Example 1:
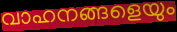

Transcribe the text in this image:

വാഹനങ്ങളെയും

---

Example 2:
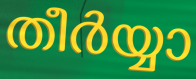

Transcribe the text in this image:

തീർയ്യാ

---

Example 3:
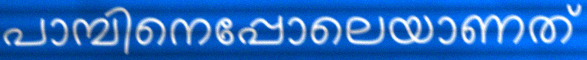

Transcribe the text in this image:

പാമ്പിനെപ്പോലെയാണത്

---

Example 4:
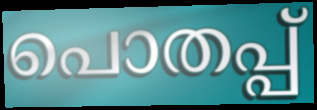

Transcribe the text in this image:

പൊതപ്പ്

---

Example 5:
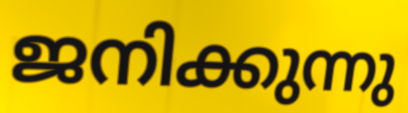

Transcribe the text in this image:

ജനിക്കുന്നു